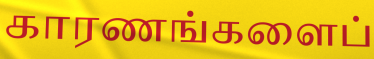
காரணங்களைப்